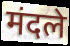
मंदले